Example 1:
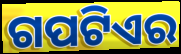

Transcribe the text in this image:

ଗପଟିଏର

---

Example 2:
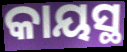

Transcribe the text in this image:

କାୟସ୍ଥ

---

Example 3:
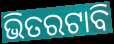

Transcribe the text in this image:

ଭିତରଟାବି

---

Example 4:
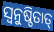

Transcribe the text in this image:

ସ୍ଵନୁଷ୍ଠିତାତ୍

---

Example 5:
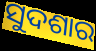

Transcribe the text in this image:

ସୁଦଶାର